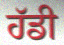
ਹੱਡੀ